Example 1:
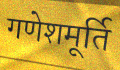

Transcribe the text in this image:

गणेशमूर्ति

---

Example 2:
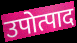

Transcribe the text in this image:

उपोत्पाद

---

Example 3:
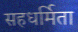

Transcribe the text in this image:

सहधर्मिता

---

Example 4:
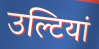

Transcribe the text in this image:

उल्टियां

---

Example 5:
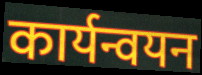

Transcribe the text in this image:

कार्यन्वयन